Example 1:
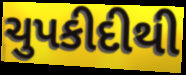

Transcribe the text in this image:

ચુપકીદીથી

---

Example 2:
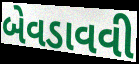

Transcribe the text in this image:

બેવડાવવી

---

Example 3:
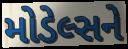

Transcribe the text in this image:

મોડેલ્સને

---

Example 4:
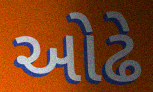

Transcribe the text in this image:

ઓઢે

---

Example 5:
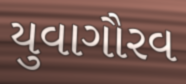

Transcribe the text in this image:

યુવાગૌરવ